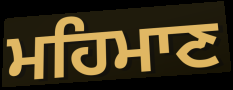
ਮਹਿਮਾਣ